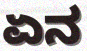
ಏನ